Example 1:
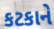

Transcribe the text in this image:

કટકાને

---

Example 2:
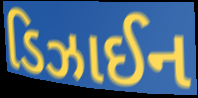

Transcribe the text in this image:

ડિઝાઈન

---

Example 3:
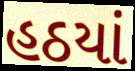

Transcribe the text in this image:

હઠયાં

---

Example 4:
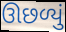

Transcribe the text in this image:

ઊછળ્યું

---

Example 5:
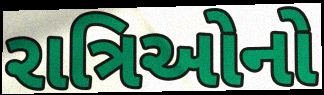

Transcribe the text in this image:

રાત્રિઓનો